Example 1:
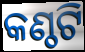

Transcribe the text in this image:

କଣ୍ଠଟି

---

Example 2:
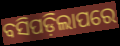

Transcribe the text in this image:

ବସିପଡ଼ିଲାପରେ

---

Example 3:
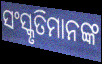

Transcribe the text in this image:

ସଂସ୍କୃତିମାନଙ୍କ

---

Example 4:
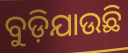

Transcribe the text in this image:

ବୁଡ଼ିଯାଉଛି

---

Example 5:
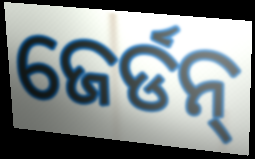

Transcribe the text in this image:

ଜେର୍ଡନ୍